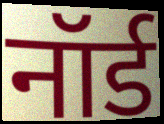
नॉर्ड